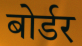
बोर्डर